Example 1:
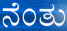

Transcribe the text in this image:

ನೆಂತು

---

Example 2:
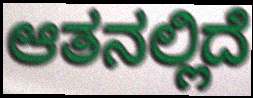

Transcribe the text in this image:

ಆತನಲ್ಲಿದೆ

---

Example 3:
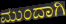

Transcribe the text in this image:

ಮುಂದಾಗಿ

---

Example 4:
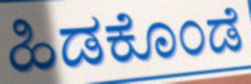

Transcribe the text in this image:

ಹಿಡಕೊಂಡೆ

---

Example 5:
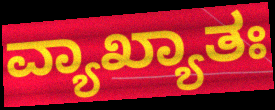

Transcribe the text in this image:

ವ್ಯಾಖ್ಯಾತಃ